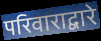
परिवाराद्वारे